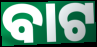
ବାଟ